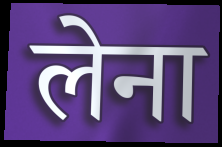
लेना